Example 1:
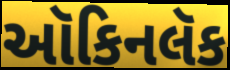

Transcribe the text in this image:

ઑકિનલૅક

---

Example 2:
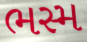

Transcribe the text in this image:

ભસ્મ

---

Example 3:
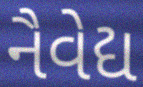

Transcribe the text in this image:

નૈવેદ્ય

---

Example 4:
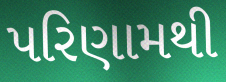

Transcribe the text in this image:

પરિણામથી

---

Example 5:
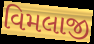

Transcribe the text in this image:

વિમલાજી